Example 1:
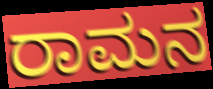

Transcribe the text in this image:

ರಾಮನ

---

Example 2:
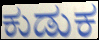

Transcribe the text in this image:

ಕುಡುಕ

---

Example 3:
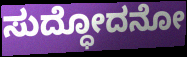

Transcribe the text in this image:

ಸುದ್ಧೋದನೋ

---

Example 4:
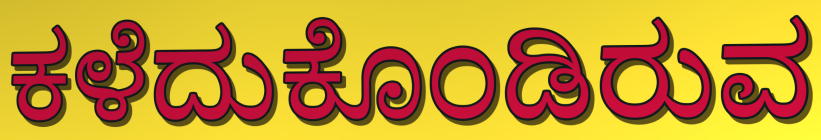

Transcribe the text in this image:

ಕಳೆದುಕೊಂಡಿರುವ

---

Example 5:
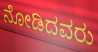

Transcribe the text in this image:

ನೋಡಿದವರು